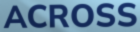
ACROSS